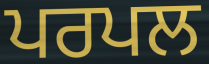
ਪਰਪਲ